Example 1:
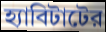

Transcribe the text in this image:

হ্যাবিটাটের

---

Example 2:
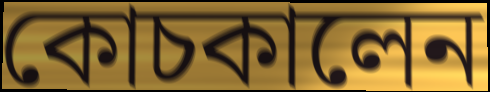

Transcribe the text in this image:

কোচকালেন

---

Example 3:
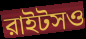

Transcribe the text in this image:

রাইটসও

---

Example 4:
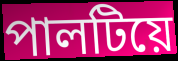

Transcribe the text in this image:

পালটিয়ে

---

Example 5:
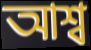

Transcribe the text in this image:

আশ্ব